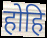
होहि